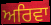
ਅਰਿਵਾ